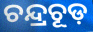
ଚନ୍ଦ୍ରଚୂଡ଼